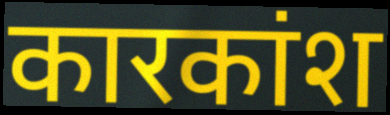
कारकांश